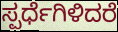
ಸ್ಪರ್ಧೆಗಿಳಿದರೆ